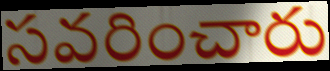
సవరించారు